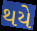
થયે